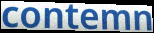
contemn